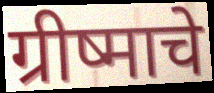
ग्रीष्माचे